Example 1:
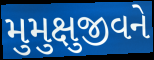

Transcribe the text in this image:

મુમુક્ષુજીવને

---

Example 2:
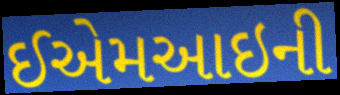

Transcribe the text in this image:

ઈએમઆઇની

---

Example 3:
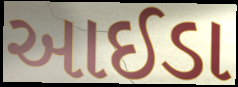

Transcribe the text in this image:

આઈડા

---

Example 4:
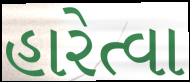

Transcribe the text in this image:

હારેત્વા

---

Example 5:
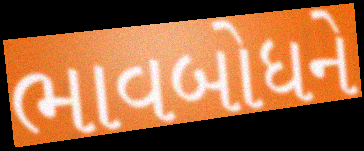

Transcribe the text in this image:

ભાવબોધને